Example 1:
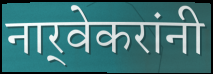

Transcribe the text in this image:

नार्वेकरांनी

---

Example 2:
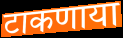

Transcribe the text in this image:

टाकणाया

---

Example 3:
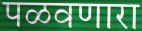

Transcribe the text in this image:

पळवणारा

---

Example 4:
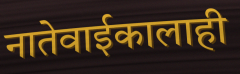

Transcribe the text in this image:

नातेवाईकालाही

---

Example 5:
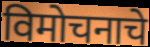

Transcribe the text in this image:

विमोचनाचे